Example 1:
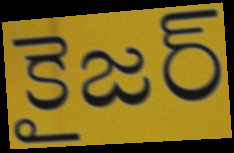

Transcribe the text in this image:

కైజర్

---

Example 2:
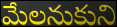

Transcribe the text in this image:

మేలనుకుని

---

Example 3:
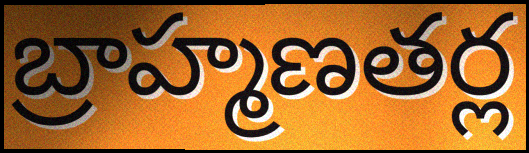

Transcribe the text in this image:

బ్రాహ్మణతర్ల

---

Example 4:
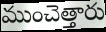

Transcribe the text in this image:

ముంచెత్తారు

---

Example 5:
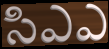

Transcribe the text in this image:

సిఎఎ